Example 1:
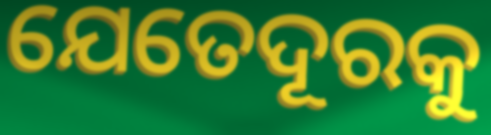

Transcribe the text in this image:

ଯେତେଦୂରକୁ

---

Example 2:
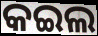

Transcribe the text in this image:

କଇଲ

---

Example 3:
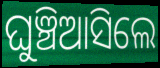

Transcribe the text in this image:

ଘୁଞ୍ଚିଆସିଲେ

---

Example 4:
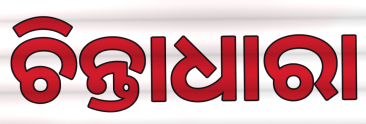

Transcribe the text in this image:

ଚିନ୍ତାଧାରା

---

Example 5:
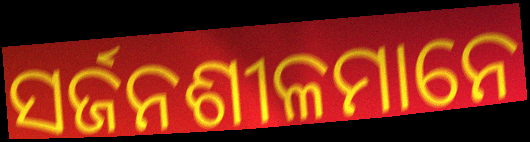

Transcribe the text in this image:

ସର୍ଜନଶୀଳମାନେ